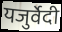
यजुर्वेदी